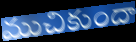
ముచికుందా